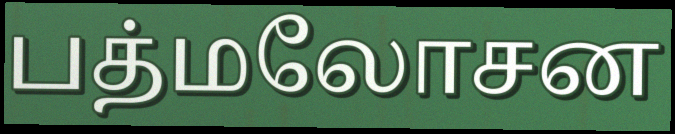
பத்மலோசன